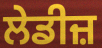
ਲੇਡੀਜ਼